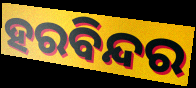
ହରବିନ୍ଦର